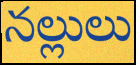
నల్లులు